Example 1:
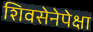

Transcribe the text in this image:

शिवसेनेपेक्षा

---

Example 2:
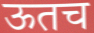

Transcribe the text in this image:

ऊतच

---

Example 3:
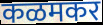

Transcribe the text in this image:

कळमकर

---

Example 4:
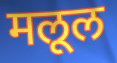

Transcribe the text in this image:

मलूल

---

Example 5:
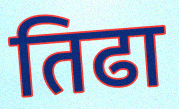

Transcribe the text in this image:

तिढा